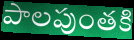
పాలపుంతకి